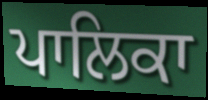
ਪਾਲਿਕਾ